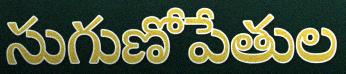
సుగుణోపేతుల